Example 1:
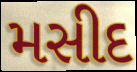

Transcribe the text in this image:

મસીદ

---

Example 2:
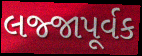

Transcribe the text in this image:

લજ્જાપૂર્વક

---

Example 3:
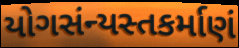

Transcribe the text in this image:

યોગસંન્યસ્તકર્માણં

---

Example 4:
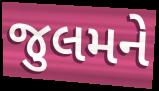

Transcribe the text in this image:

જુલમને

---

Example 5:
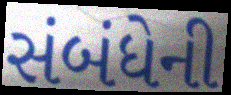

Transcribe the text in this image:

સંબંધેની